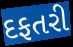
દફતરી